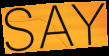
SAY